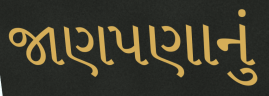
જાણપણાનું